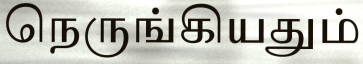
நெருங்கியதும்